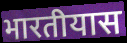
भारतीयास